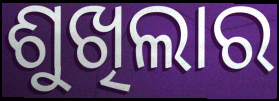
ଶୁଖିଲାର